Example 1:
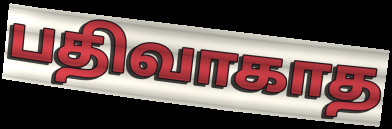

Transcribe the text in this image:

பதிவாகாத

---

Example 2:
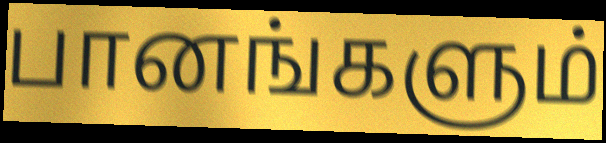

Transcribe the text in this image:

பானங்களும்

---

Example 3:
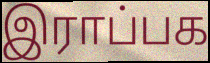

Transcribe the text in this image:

இராப்பக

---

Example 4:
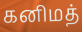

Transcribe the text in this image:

கனிமத்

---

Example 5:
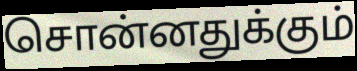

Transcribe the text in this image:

சொன்னதுக்கும்